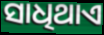
ସାଧିଥାଏ